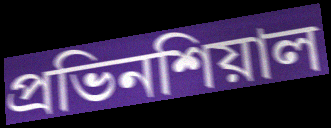
প্রভিনশিয়াল